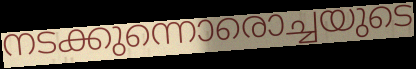
നടക്കുന്നൊരൊച്ചയുടെ